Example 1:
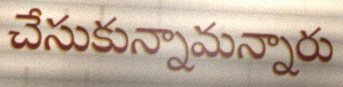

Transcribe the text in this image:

చేసుకున్నామన్నారు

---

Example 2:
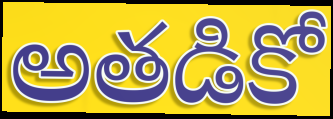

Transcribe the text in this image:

అతడికో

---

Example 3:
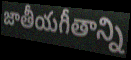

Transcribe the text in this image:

జాతీయగీతాన్ని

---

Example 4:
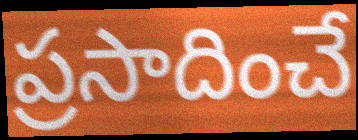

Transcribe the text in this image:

ప్రసాదించే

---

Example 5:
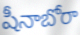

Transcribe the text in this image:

షీనాబోరా